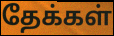
தேக்கள்